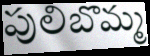
పులిబొమ్మ